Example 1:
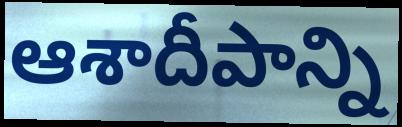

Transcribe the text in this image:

ఆశాదీపాన్ని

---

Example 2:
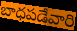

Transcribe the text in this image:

బాధపడేవారి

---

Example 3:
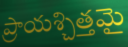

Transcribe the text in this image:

ప్రాయశ్చిత్తమై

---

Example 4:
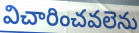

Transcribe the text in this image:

విచారించవలెను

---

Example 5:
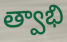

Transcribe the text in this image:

త్వాభి